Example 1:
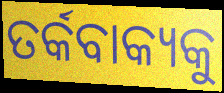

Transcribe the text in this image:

ତର୍କବାକ୍ୟକୁ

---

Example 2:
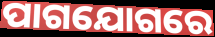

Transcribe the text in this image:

ପାଗଯୋଗରେ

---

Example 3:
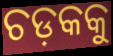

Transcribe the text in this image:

ଚଡ଼କକୁ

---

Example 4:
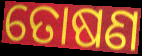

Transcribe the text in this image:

ତୋଷଣ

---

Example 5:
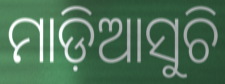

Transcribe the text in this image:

ମାଡ଼ିଆସୁଚି